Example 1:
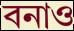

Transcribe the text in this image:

বনাও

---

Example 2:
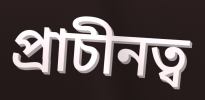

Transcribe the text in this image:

প্ৰাচীনত্ব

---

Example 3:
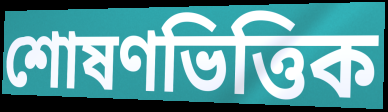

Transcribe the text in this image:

শোষণভিত্তিক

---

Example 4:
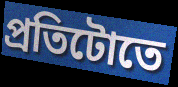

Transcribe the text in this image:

প্ৰতিটোতে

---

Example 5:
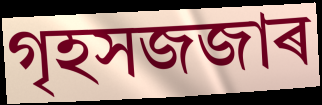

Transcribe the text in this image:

গৃহসজজাৰ